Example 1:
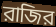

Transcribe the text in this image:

রাজির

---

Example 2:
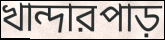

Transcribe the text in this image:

খান্দারপাড়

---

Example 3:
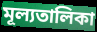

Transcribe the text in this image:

মূল্যতালিকা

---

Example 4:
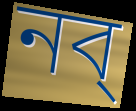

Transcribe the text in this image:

নব্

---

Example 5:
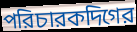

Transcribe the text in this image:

পরিচারকদিগের